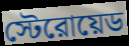
স্টেরোয়েড